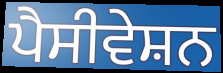
ਪੈਸੀਵੇਸ਼ਨ